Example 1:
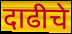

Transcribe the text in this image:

दाढीचे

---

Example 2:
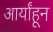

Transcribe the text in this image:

आर्यांहून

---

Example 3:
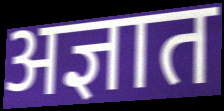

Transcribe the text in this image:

अज्ञात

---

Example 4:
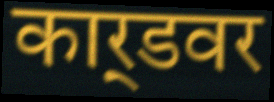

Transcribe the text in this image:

कार्डवर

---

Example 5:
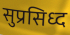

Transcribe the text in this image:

सुप्रसिध्द